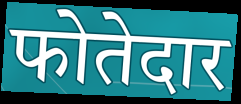
फोतेदार